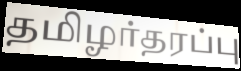
தமிழர்தரப்பு